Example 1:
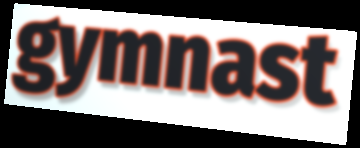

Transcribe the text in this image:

gymnast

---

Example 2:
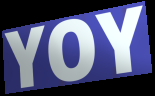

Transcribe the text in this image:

YOY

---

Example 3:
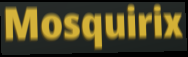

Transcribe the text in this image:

Mosquirix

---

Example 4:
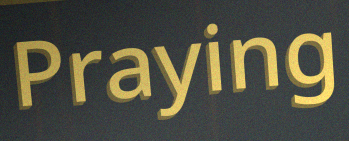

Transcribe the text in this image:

Praying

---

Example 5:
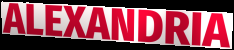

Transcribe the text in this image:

ALEXANDRIA